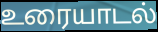
உரையாடல்